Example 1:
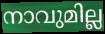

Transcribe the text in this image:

നാവുമില്ല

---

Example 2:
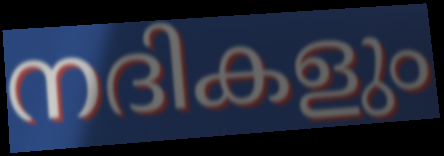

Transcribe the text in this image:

നദികളും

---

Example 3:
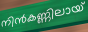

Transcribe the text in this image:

നിൻകണ്ണിലായ്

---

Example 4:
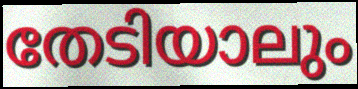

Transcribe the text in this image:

തേടിയാലും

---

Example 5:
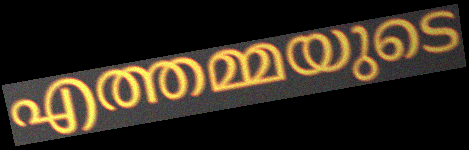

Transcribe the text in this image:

എത്തമ്മയുടെ